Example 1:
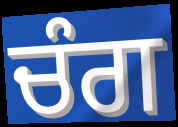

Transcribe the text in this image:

ਚੰਗ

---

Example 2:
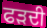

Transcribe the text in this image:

ਫੜਦੀ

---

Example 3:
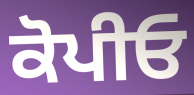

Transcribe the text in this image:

ਕੋਪੀਓ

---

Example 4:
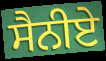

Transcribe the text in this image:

ਸੈਨੀਏ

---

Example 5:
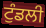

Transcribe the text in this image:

ਟੁੰਡਲੀ